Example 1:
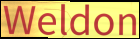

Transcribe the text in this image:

Weldon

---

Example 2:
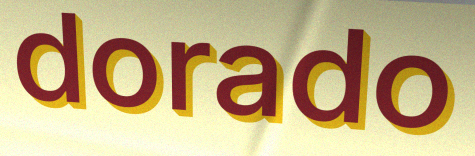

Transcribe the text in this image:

dorado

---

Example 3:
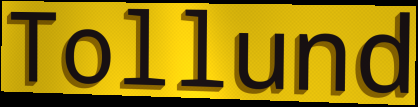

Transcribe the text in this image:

Tollund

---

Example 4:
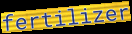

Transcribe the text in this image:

fertilizer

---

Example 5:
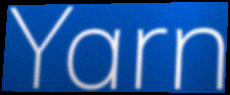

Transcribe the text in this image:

Yarn